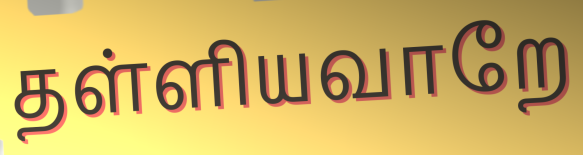
தள்ளியவாறே